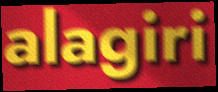
alagiri